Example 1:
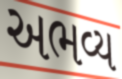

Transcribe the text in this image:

અભવ્ય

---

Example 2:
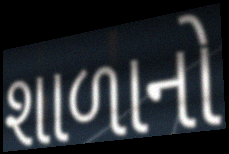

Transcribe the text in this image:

શાળાનો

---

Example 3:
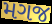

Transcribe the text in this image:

મગજ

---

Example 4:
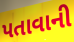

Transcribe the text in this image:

પતાવાની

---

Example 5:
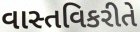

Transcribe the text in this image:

વાસ્તવિકરીતે